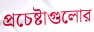
প্রচেষ্টাগুলোর